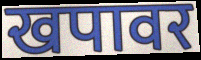
खपावर